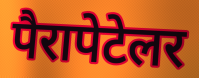
पैरापेटेलर